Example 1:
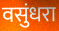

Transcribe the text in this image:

वसुंधरा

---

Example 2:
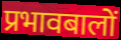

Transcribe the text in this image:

प्रभावबालों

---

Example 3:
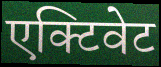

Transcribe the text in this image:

एक्टिवेट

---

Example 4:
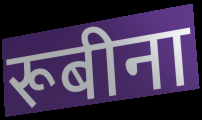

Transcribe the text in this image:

रूबीना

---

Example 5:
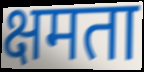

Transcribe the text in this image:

क्षमता